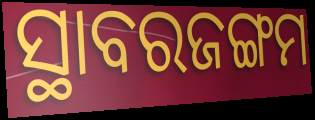
ସ୍ଥାବରଜଙ୍ଗମ